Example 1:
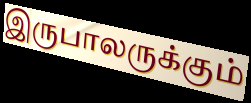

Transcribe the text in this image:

இருபாலருக்கும்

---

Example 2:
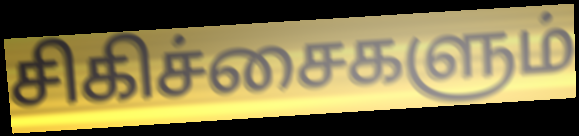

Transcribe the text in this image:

சிகிச்சைகளும்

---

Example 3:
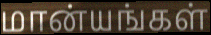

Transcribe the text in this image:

மான்யங்கள்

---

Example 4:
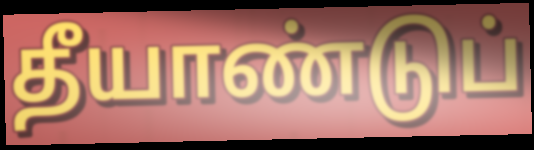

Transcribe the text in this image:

தீயாண்டுப்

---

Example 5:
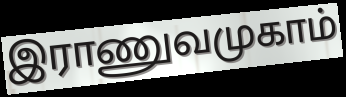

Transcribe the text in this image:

இராணுவமுகாம்